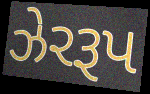
ઝેરરૂપ